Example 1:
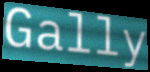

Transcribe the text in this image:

Gally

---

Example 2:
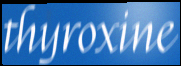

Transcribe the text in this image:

thyroxine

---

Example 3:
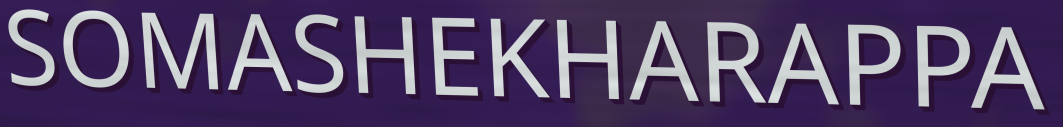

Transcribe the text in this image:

SOMASHEKHARAPPA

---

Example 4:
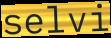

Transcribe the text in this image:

selvi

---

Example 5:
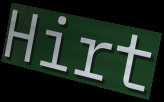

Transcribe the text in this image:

Hirt